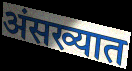
अंसख्यात